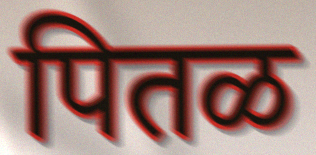
पितळ